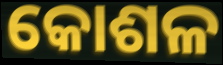
କୋଶଳ